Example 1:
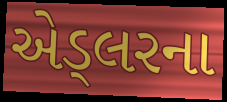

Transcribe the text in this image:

એડ્લરના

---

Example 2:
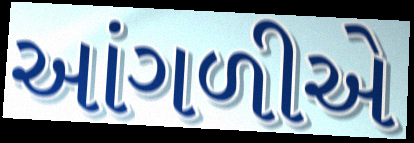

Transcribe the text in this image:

આંગળીએ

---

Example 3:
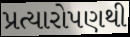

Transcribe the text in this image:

પ્રત્યારોપણથી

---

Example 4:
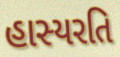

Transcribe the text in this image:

હાસ્યરતિ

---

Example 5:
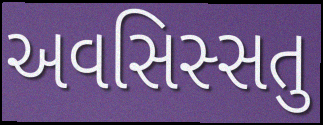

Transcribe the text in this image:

અવસિસ્સતુ